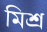
মিশ্র